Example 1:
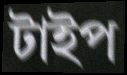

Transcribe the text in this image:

টাইপ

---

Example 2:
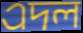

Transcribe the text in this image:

এদল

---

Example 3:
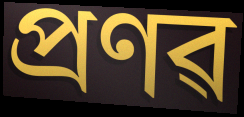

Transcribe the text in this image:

প্ৰণৱ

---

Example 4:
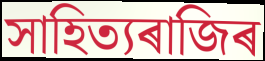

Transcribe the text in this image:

সাহিত্যৰাজিৰ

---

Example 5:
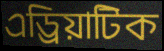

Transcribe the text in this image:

এড্ৰিয়াটিক